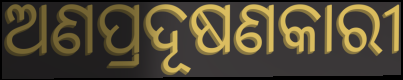
ଅଣପ୍ରଦୂଷଣକାରୀ